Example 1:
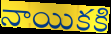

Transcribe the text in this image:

నాయికకి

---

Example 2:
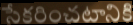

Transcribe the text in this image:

సేకరించటానికి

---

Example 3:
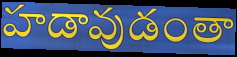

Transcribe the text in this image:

హడావుడంతా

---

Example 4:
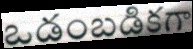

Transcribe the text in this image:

ఒడంబడికగా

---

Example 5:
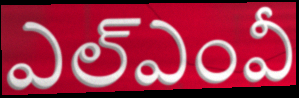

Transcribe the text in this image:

ఎల్ఎంవీ